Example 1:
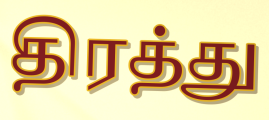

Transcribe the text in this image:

திரத்து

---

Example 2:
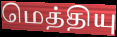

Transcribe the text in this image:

மெத்தியு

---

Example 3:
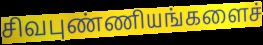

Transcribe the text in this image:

சிவபுண்ணியங்களைச்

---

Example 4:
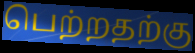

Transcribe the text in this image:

பெற்றதற்கு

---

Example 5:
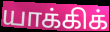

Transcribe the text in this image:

யாக்கிக்